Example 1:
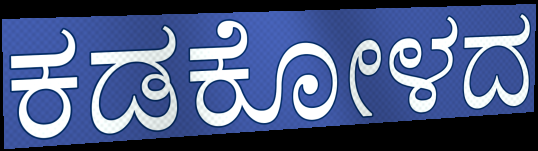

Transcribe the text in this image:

ಕಡಕೋಳದ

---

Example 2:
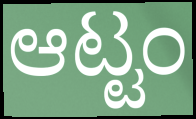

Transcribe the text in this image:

ಆಟ್ಟಂ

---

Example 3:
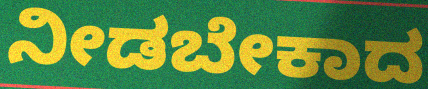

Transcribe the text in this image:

ನೀಡಬೇಕಾದ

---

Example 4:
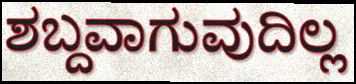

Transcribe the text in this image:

ಶಬ್ದವಾಗುವುದಿಲ್ಲ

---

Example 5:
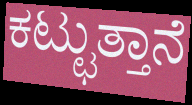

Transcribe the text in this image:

ಕಟ್ಟುತ್ತಾನೆ